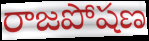
రాజపోషణ